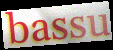
bassu